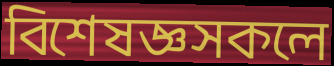
বিশেষজ্ঞসকলে